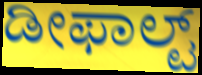
ಡೀಫಾಲ್ಟ್